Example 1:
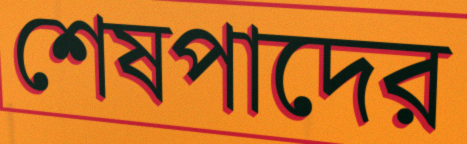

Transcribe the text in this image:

শেষপাদের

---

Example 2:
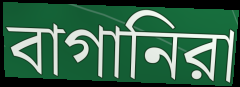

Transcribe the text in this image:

বাগানিরা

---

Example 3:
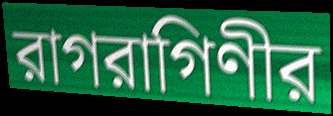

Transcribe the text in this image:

রাগরাগিণীর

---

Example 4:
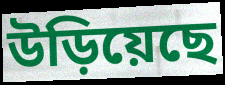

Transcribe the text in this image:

উড়িয়েছে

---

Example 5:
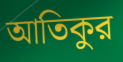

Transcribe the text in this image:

আতিকুর